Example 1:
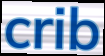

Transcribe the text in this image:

crib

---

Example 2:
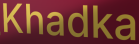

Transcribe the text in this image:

Khadka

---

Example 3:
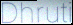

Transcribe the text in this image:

Dhruti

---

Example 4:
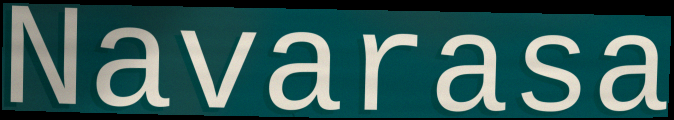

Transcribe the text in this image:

Navarasa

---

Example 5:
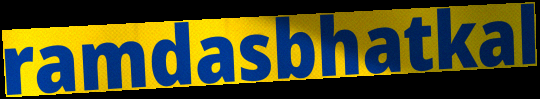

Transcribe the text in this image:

ramdasbhatkal